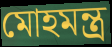
মোহমন্ত্র